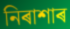
নিৰাশাৰ